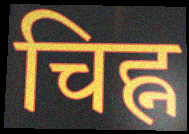
चिह्न